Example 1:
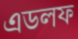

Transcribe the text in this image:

এডলফ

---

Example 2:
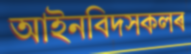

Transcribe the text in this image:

আইনবিদসকলৰ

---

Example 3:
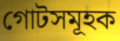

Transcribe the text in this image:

গোটসমূহক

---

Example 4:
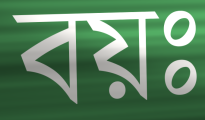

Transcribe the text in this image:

বয়ঃ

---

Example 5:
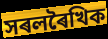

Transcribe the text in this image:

সৰলৰৈখিক